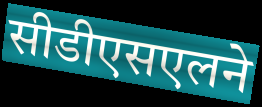
सीडीएसएलने